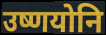
उष्णयोनि